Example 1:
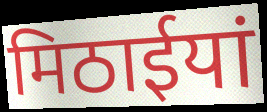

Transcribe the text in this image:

मिठाईयां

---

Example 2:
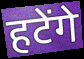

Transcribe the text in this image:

हटेंगे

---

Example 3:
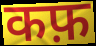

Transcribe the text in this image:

कफ़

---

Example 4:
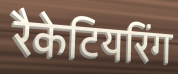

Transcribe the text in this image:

रैकेटियरिंग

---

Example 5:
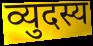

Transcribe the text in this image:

व्युदस्य